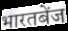
भारतबेंज